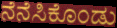
ನೆನೆಸಿಕೊಂಡು